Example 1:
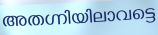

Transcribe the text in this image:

അതഗ്നിയിലാവട്ടെ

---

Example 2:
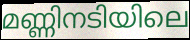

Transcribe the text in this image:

മണ്ണിനടിയിലെ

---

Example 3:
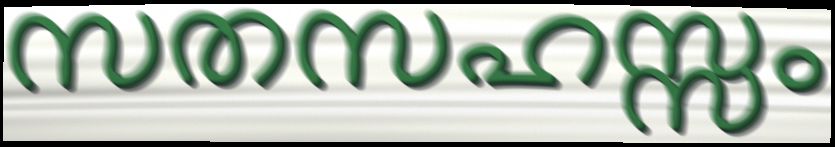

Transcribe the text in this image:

സതസഹസ്സം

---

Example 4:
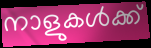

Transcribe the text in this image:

നാളുകൾക്ക്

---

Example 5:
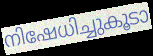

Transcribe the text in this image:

നിഷേധിച്ചുകൂടാ